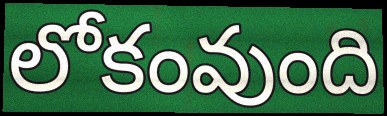
లోకంవుంది